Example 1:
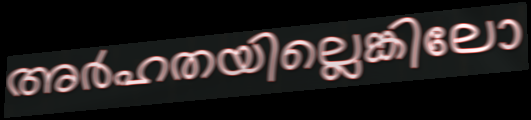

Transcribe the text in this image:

അർഹതയില്ലെങ്കിലോ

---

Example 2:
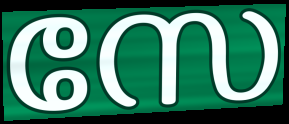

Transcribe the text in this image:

സേ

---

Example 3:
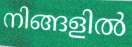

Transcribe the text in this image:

നിങ്ങളിൽ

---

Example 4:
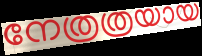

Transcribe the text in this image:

നേത്രത്രയായ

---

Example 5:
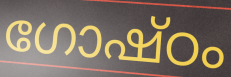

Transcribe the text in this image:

ഗോഷ്ഠം